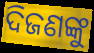
ଦିଜଣଙ୍କୁ